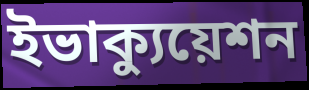
ইভাক্যুয়েশন